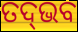
ତଦ୍‌ଭବ